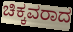
ಚಿಕ್ಕವರಾದ